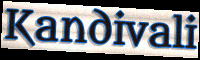
Kandivali